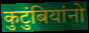
कुटुंबियांनो